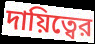
দায়িত্বের